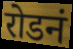
रोडनं